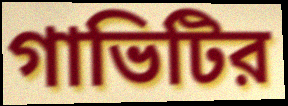
গাভিটির